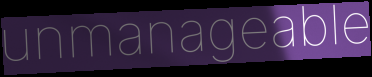
unmanageable